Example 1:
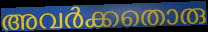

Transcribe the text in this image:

അവർക്കതൊരു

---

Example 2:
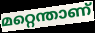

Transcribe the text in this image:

മറ്റെന്താണ്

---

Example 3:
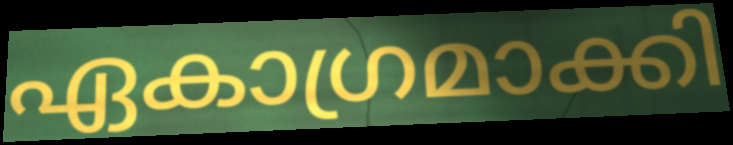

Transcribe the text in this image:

ഏകാഗ്രമാക്കി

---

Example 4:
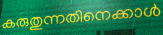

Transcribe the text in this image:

കരുതുന്നതിനെക്കാൾ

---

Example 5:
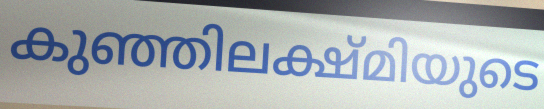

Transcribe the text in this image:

കുഞ്ഞിലക്ഷ്മിയുടെ